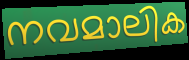
നവമാലിക